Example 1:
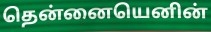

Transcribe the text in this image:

தென்னையெனின்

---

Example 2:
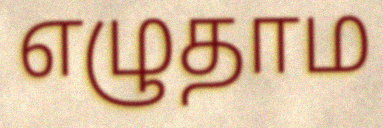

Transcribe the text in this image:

எழுதாம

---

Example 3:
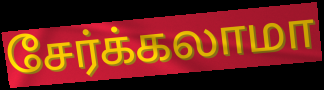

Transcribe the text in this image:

சேர்க்கலாமா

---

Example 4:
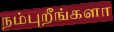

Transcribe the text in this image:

நம்புறீங்களா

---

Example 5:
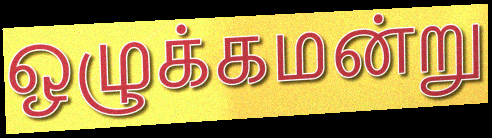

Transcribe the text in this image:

ஒழுக்கமன்று